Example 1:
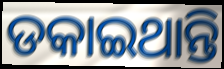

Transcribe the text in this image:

ଡକାଇଥାନ୍ତି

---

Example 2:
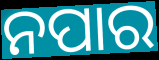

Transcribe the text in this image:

ନପାର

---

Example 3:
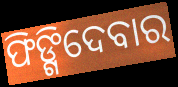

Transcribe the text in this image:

ଫିଙ୍ଗିଦେବାର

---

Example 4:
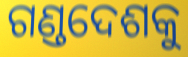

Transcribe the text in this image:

ଗଣ୍ଡଦେଶକୁ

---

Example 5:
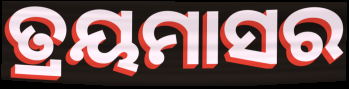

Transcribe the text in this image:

ତ୍ରୟମାସର